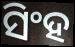
ସିଂହ